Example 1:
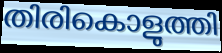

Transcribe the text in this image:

തിരികൊളുത്തി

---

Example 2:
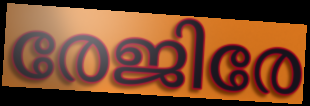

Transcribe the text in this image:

രേജിരേ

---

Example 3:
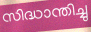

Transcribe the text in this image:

സിദ്ധാന്തിച്ചു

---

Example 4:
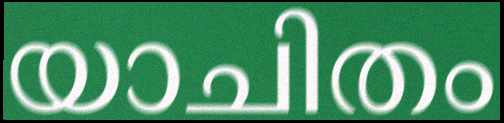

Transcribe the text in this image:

യാചിതം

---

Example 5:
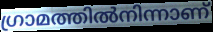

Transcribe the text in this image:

ഗ്രാമത്തിൽനിന്നാണ്